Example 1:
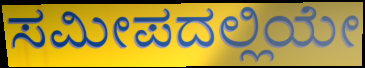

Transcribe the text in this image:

ಸಮೀಪದಲ್ಲಿಯೇ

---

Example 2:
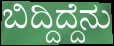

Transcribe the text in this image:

ಬಿದ್ದಿದ್ದೆನು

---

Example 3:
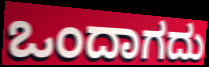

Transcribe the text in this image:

ಒಂದಾಗದು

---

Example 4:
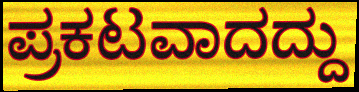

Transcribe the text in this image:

ಪ್ರಕಟವಾದದ್ದು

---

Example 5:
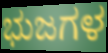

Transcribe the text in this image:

ಭುಜಗಳ